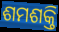
ଶମଶକ୍ତି